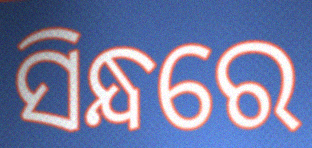
ସିନ୍ଧରେ